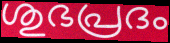
ശുഭപ്രദം